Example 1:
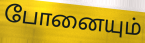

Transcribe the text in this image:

போனையும்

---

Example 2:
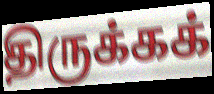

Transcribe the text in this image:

திருக்கக்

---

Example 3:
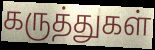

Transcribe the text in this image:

கருத்துகள்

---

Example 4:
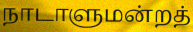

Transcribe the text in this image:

நாடாளுமன்றத்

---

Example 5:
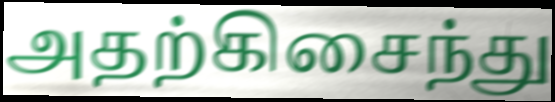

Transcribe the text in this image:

அதற்கிசைந்து